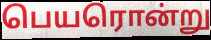
பெயரொன்று